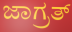
ಜಾಗ್ರತ್